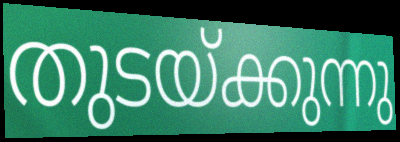
തുടയ്ക്കുന്നു